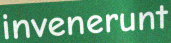
invenerunt